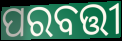
ପରବତ୍ତୀ